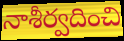
నాశీర్వదించి